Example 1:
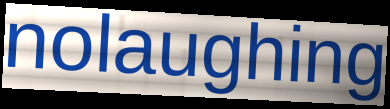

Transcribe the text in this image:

nolaughing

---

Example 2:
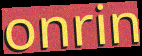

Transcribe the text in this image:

onrin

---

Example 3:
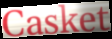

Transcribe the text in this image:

Casket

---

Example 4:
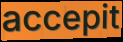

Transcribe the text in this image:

accepit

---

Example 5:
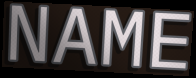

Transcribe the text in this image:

NAME